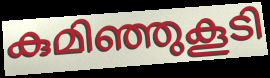
കുമിഞ്ഞുകൂടി